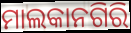
ମାଲକାନଗିରି